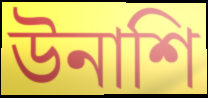
উনাশি